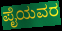
ಪೈಯವರ